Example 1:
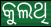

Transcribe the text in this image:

କୁଲଥି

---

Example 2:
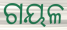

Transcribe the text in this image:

ଗୟଳ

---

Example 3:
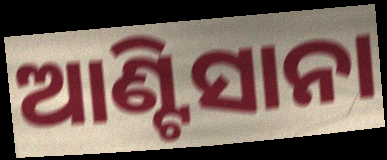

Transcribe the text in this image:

ଆଣ୍ଟିସାନା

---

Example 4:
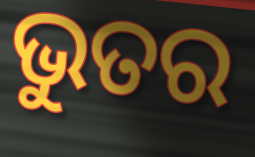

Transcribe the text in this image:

ଭୁତର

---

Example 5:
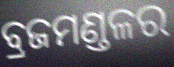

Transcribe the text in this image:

ବ୍ରଜମଣ୍ଡଳର